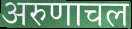
अरुणाचल